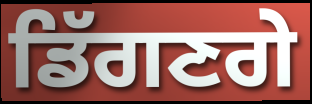
ਡਿੱਗਣਗੇ